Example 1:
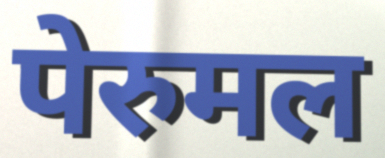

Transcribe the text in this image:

पेरुमल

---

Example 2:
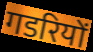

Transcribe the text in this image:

गडरियों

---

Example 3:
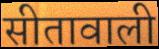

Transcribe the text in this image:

सीतावाली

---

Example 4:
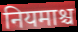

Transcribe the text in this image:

नियमाश्च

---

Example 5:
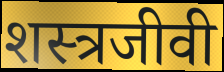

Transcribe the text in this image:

शस्त्रजीवी